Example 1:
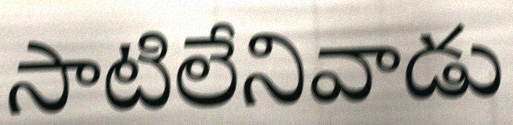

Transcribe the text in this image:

సాటిలేనివాడు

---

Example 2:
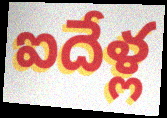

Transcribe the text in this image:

ఐదేళ్ల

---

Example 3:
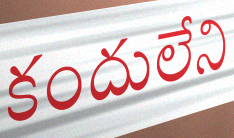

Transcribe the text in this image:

కందులేని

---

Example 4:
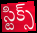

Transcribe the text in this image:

స్టిక్స్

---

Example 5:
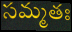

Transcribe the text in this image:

సమ్మతః